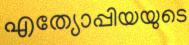
എത്യോപ്പിയയുടെ